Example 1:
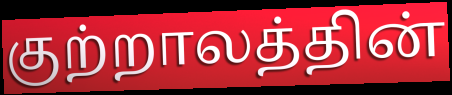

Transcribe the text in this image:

குற்றாலத்தின்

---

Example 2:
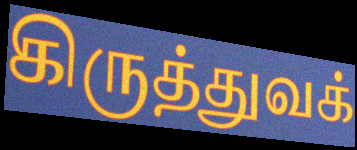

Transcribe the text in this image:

கிருத்துவக்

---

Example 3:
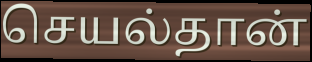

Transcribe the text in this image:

செயல்தான்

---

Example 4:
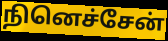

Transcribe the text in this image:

நினெச்சேன்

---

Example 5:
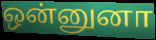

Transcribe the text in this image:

ஒன்னுனா